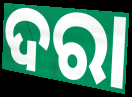
ଦରା